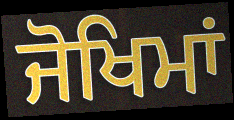
ਜੋਖਿਮਾਂ